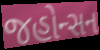
જહોન્સન